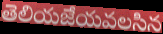
తెలియజేయవలసిన